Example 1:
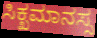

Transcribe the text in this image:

ಸಿಕ್ಖಮಾನಸ್ಸ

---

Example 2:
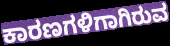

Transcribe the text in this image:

ಕಾರಣಗಳಿಗಾಗಿರುವ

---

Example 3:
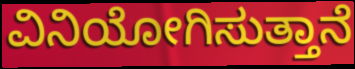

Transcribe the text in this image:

ವಿನಿಯೋಗಿಸುತ್ತಾನೆ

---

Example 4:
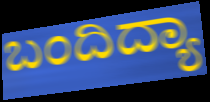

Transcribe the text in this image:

ಬಂದಿದ್ಯಾ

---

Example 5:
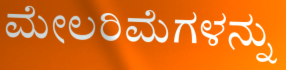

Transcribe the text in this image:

ಮೇಲರಿಮೆಗಳನ್ನು